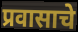
प्रवासाचे